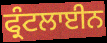
ਫ੍ਰੰਟਲਾਈਨ